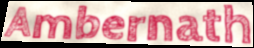
Ambernath